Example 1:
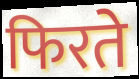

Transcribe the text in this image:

फिरते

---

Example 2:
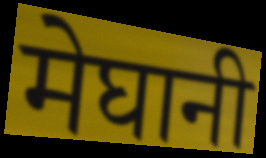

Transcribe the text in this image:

मेघानी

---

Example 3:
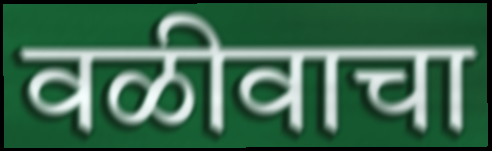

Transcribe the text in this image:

वळीवाचा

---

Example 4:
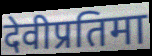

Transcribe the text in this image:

देवीप्रतिमा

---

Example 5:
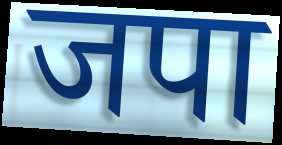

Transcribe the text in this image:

जपा